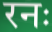
रनः